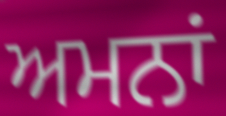
ਅਮਨਾਂ